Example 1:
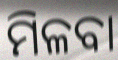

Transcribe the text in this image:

ମିଳବା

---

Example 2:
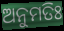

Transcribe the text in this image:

ଅନୁମତିଃ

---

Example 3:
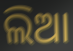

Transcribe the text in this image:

ଲିଆ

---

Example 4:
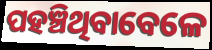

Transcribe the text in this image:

ପହଞ୍ଚିଥିବାବେଳେ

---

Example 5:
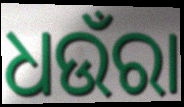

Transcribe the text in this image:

ଧଉଁରା